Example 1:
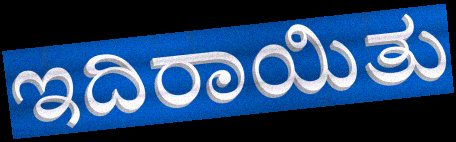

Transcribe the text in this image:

ಇದಿರಾಯಿತು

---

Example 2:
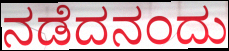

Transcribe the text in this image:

ನಡೆದನಂದು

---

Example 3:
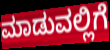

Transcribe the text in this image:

ಮಾಡುವಲ್ಲಿಗೆ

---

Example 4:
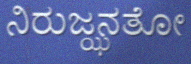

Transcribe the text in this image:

ನಿರುಜ್ಝನತೋ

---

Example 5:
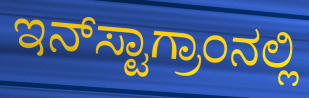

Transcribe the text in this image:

ಇನ್‌ಸ್ಟಾಗ್ರಾಂನಲ್ಲಿ